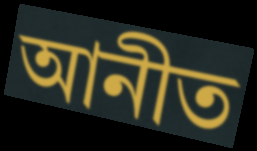
আনীত